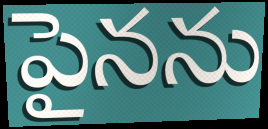
పైనను